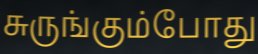
சுருங்கும்போது